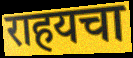
राहयचा